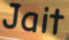
Jait